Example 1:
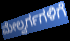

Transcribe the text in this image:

ಮೇಲ್ವರ್ಗಗಳಿಗೆ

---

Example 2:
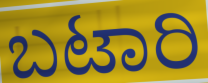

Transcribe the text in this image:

ಬಟಾರಿ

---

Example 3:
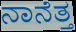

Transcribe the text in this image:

ನಾನೆತ್ತ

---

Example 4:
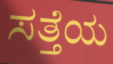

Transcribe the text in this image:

ಸತ್ತೆಯ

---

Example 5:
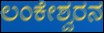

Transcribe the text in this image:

ಲಂಕೇಶ್ವರನ